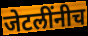
जेटलींनीच